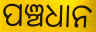
ପଞ୍ଚଧାନ